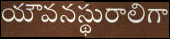
యౌవనస్థురాలిగా